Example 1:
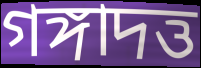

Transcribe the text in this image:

গঙ্গাদত্ত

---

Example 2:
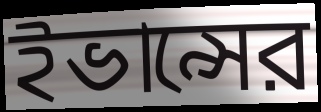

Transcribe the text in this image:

ইভান্সের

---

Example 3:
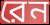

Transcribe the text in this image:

রেন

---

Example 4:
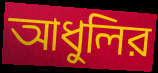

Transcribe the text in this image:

আধুলির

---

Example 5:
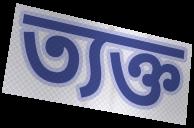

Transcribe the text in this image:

ত্যক্ত